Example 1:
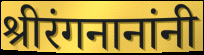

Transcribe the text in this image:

श्रीरंगनानांनी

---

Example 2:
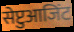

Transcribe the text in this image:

सेप्टुआजिंट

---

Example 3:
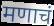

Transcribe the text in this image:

मणाचं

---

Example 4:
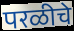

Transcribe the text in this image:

परळीचे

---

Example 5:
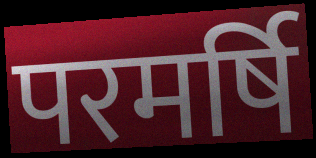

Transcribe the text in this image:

परमर्षि